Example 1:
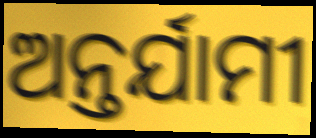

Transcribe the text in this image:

ଅନ୍ତର୍ଯାମୀ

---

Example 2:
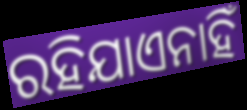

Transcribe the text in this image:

ରହିଯାଏନାହିଁ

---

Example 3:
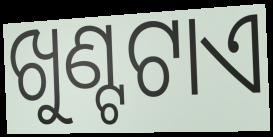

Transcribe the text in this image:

ଖୁଣ୍ଟଟାଏ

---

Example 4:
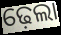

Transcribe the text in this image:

ଢ଼େଲା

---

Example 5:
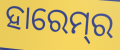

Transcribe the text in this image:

ହାରେମ୍‍ର